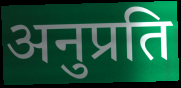
अनुप्रति